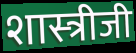
शास्त्रीजी